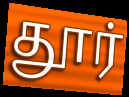
தூர்